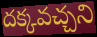
దక్కవచ్చని